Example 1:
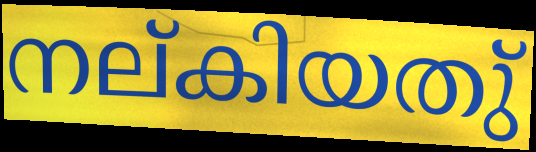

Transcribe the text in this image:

നല്കിയതു്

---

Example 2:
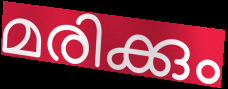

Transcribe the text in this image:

മരിക്കും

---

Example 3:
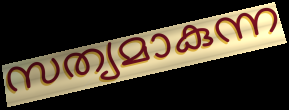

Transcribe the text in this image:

സത്യമാകുന്ന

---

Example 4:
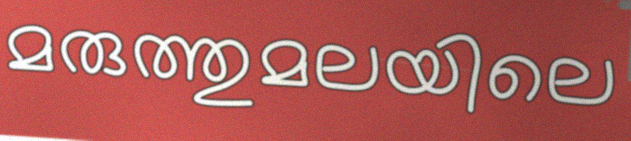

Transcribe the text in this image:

മരുത്തുമലയിലെ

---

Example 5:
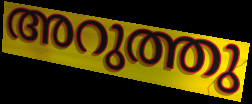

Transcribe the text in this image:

അറുത്തു